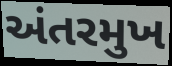
અંતરમુખ